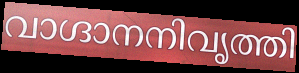
വാഗ്ദാനനിവൃത്തി